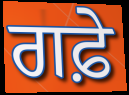
ਗਫ਼ੇ